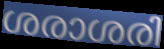
ശരാശരി